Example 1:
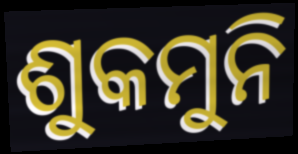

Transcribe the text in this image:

ଶୁକମୁନି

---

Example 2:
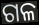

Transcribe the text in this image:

ଗଳ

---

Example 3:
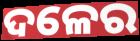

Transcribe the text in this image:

ଦଳେର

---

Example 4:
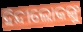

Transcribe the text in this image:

ହିନ୍ଦୀଲୋକଙ୍କୁ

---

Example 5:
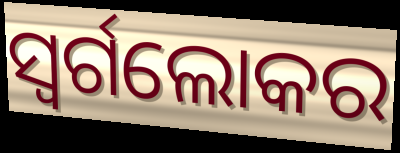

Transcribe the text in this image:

ସ୍ୱର୍ଗଲୋକର